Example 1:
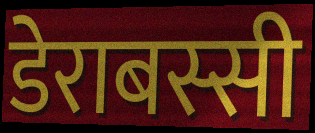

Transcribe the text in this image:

डेराबस्सी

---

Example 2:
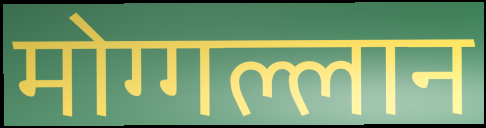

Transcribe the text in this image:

मोग्गल्लान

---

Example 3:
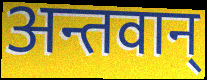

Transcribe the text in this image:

अन्तवान्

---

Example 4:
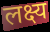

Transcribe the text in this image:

लक्ष्‍य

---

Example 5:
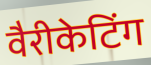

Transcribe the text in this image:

वैरीकेटिंग